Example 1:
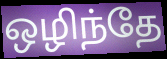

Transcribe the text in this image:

ஒழிந்தே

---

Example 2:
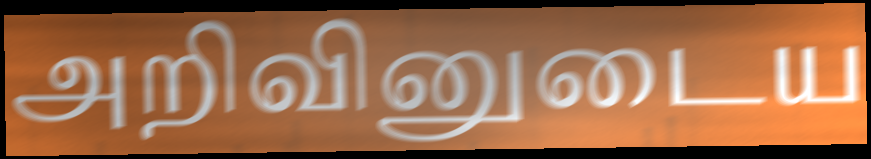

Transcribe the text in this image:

அறிவினுடைய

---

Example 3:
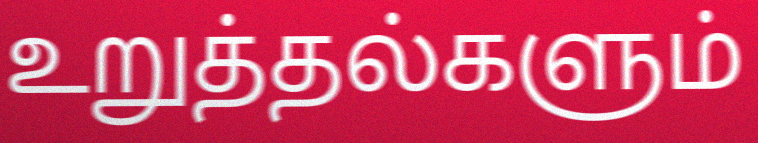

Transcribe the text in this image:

உறுத்தல்களும்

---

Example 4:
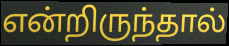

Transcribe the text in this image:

என்றிருந்தால்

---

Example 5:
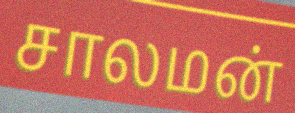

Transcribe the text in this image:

சாலமன்